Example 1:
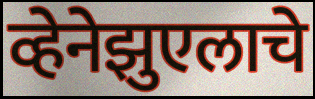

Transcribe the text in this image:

व्हेनेझुएलाचे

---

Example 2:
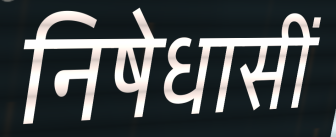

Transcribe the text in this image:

निषेधासीं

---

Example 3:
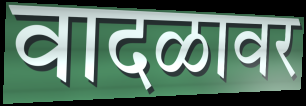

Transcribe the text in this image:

वादळावर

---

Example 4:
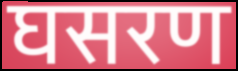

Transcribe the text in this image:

घसरण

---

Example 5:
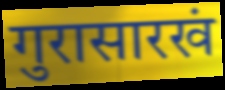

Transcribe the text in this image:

गुरासारखं